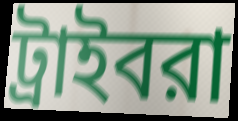
ট্রাইবরা